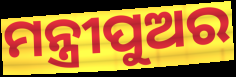
ମନ୍ତ୍ରୀପୁଅର